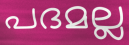
പദമല്ല